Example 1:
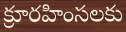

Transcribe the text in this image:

క్రూరహింసలకు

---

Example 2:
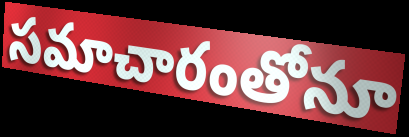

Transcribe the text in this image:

సమాచారంతోనూ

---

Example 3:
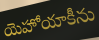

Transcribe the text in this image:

యెహోయాకీను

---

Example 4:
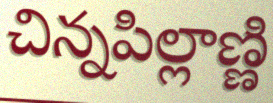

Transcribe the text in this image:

చిన్నపిల్లాణ్ణి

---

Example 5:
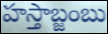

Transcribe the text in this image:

హస్తాబ్జంబు